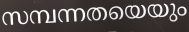
സമ്പന്നതയെയും